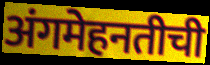
अंगमेहनतीची